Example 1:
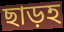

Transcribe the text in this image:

ছাড়হ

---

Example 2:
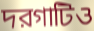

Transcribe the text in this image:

দরগাটিও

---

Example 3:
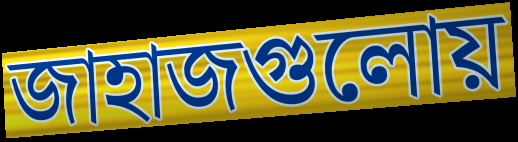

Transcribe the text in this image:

জাহাজগুলোয়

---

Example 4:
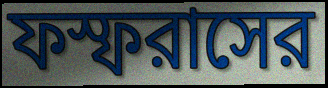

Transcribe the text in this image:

ফস্ফরাসের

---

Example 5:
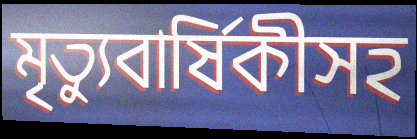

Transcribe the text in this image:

মৃত্যুবার্ষিকীসহ